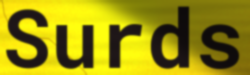
Surds